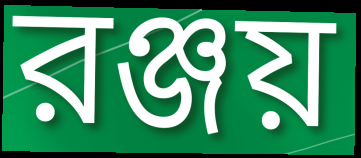
রঞ্জয়